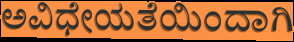
ಅವಿಧೇಯತೆಯಿಂದಾಗಿ